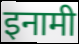
इनामी